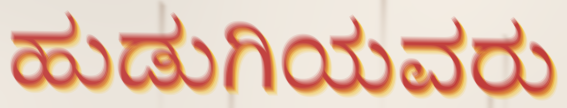
ಹುಡುಗಿಯವರು